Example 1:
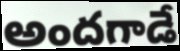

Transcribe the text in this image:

అందగాడే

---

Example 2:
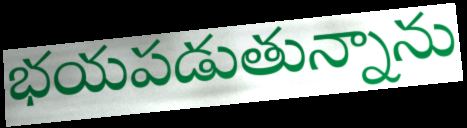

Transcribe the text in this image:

భయపడుతున్నాను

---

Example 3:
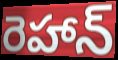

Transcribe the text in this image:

రెహాన్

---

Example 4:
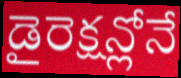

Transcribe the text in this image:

డైరెక్షన్లోనే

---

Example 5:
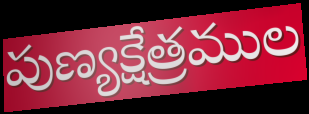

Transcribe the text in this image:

పుణ్యక్షేత్రముల